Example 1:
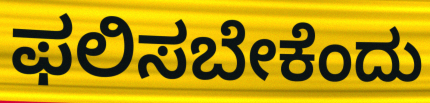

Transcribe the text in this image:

ಫಲಿಸಬೇಕೆಂದು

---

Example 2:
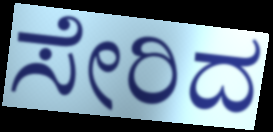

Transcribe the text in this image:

ಸೇರಿದ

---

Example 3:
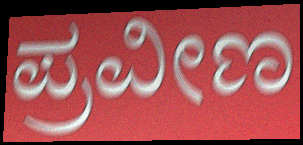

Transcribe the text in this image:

ಪ್ರವೀಣ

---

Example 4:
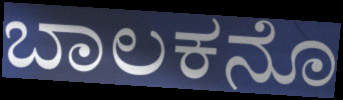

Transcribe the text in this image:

ಬಾಲಕನೊ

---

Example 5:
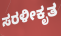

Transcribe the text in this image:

ಸರಳೀಕೃತ